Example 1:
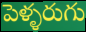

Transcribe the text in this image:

పెళ్ళరుగు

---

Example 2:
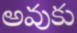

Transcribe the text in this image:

అవుకు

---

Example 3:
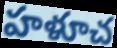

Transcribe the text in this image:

హళూచ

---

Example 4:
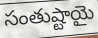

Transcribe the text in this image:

సంతుష్టాయై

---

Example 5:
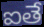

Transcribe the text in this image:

ఐతే